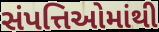
સંપત્તિઓમાંથી